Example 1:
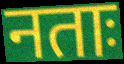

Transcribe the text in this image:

नताः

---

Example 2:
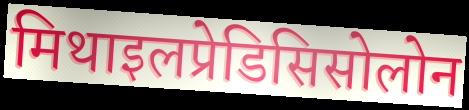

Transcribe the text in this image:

मिथाइलप्रेडिसिसोलोन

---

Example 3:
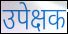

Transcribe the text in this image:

उपेक्षक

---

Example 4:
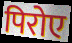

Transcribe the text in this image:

पिरोए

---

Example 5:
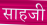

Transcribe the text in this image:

साहजी